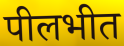
पीलभीत